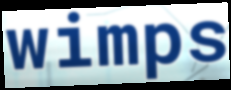
wimps